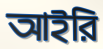
আইরি